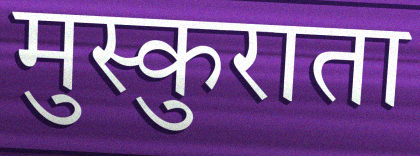
मुस्कुराता